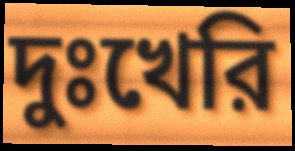
দুঃখেরি